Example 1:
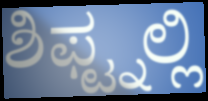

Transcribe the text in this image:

ಶಿಫ್ಟ್ನಲ್ಲಿ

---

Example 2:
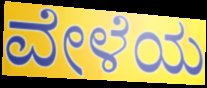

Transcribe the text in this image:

ವೇಳೆಯ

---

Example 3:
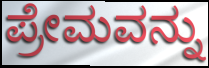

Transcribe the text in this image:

ಪ್ರೇಮವನ್ನು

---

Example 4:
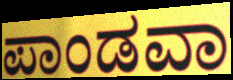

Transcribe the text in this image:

ಪಾಂಡವಾ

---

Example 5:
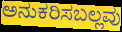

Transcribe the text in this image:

ಅನುಕರಿಸಬಲ್ಲವು